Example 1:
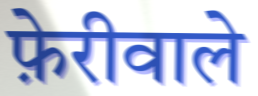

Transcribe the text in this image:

फ़ेरीवाले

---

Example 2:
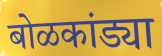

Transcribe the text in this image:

बोळकांड्या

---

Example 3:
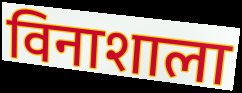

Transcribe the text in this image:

विनाशाला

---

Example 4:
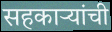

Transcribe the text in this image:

सहकाऱ्यांची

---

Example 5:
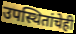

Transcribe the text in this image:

उपस्थितांचेही